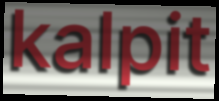
kalpit